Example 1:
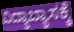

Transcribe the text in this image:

ವಿದ್ಯಾಬ್ಯಾಸಕ್ಕೆ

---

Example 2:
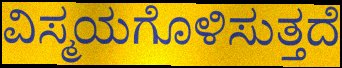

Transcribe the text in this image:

ವಿಸ್ಮಯಗೊಳಿಸುತ್ತದೆ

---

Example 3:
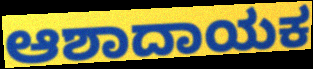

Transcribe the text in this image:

ಆಶಾದಾಯಕ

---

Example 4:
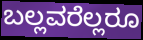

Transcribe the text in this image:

ಬಲ್ಲವರೆಲ್ಲರೂ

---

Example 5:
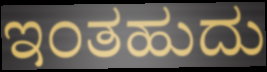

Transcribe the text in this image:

ಇಂತಹುದು